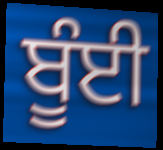
ਬੂੰਈ